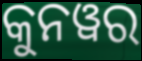
କୁନୱର